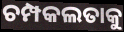
ଚମ୍ପକଲତାକୁ